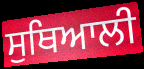
ਸੁਥਿਆਲੀ